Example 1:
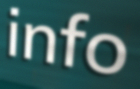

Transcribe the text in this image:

info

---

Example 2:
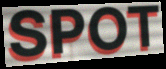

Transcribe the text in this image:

SPOT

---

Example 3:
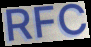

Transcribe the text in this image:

RFC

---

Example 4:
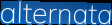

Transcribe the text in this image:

alternata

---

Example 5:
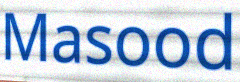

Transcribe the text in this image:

Masood